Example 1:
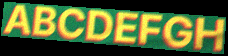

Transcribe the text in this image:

ABCDEFGH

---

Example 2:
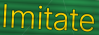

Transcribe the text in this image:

Imitate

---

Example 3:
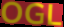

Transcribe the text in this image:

OGL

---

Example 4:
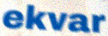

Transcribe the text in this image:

ekvar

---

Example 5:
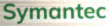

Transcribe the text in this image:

Symantec